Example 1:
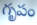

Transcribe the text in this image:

గృపం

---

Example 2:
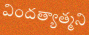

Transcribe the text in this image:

విందత్యాత్మని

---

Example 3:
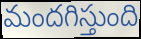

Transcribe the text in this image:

మందగిస్తుంది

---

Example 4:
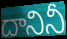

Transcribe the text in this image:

దానినీ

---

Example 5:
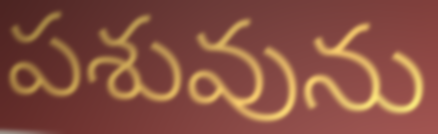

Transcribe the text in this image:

పశువును